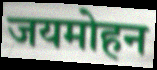
जयमोहन